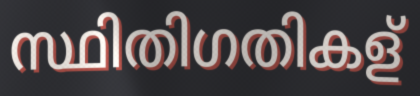
സ്ഥിതിഗതികള്